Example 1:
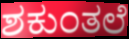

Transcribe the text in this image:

ಶಕುಂತಲೆ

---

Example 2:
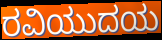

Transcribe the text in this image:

ರವಿಯುದಯ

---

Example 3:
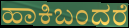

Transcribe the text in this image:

ಹಾಕಿಬಂದರೆ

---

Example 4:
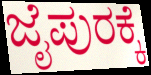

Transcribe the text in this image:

ಜೈಪುರಕ್ಕೆ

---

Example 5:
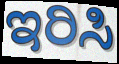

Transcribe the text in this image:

ಇರಿಸಿ